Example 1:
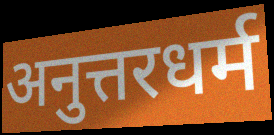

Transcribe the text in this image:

अनुत्तरधर्म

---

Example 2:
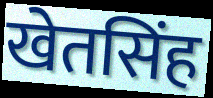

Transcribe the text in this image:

खेतसिंह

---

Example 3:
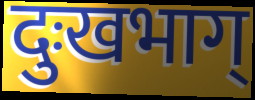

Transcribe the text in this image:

दुःखभाग्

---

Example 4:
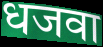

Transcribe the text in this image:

धजवा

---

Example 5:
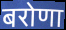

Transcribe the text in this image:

बरोणा